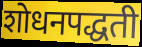
शोधनपद्धती